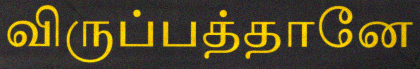
விருப்பத்தானே